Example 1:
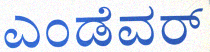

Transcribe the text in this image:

ಎಂಡೆವರ್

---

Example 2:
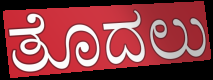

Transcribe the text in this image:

ತೊದಲು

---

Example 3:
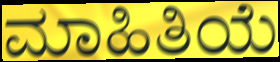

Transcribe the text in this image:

ಮಾಹಿತಿಯೆ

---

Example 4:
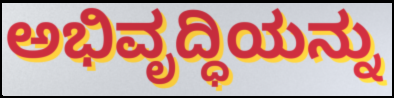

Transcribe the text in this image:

ಅಭಿವೃದ್ಧಿಯನ್ನು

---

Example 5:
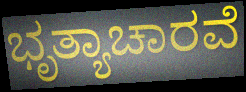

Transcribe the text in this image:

ಭೃತ್ಯಾಚಾರವೆ